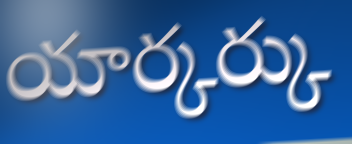
యార్కర్కు